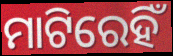
ମାଟିରେହିଁ